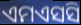
ଏମଏସସି